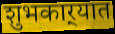
शुभकार्यात